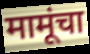
मामूंचा